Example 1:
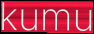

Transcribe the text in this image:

kumu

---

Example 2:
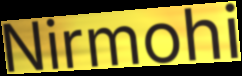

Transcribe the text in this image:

Nirmohi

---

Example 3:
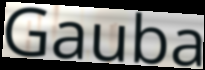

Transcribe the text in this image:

Gauba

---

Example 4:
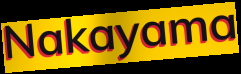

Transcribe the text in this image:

Nakayama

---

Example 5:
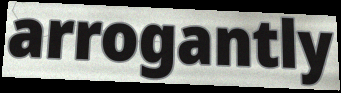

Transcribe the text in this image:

arrogantly